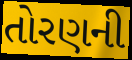
તોરણની